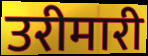
उरीमारी